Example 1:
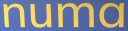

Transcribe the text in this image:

numa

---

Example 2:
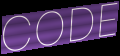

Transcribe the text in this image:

CODE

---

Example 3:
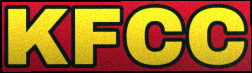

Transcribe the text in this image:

KFCC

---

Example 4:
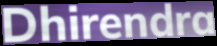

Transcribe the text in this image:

Dhirendra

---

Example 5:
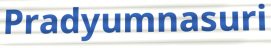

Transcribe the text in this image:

Pradyumnasuri